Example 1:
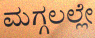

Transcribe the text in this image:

ಮಗ್ಗಲಲ್ಲೇ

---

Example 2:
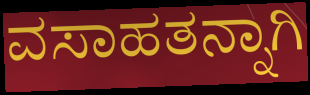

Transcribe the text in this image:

ವಸಾಹತನ್ನಾಗಿ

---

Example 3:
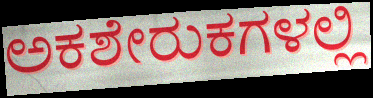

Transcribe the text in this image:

ಅಕಶೇರುಕಗಳಲ್ಲಿ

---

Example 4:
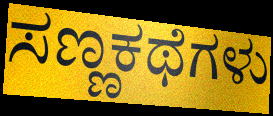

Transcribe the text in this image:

ಸಣ್ಣಕಥೆಗಳು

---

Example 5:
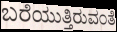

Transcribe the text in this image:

ಬರೆಯುತ್ತಿರುವಂತೆ